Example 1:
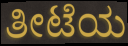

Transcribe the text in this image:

ತೀಟೆಯ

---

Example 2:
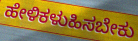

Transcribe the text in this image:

ಹೇಳಿಕಳುಹಿಸಬೇಕು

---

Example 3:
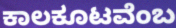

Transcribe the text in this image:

ಕಾಲಕೂಟವೆಂಬ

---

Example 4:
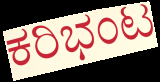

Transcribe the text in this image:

ಕರಿಭಂಟ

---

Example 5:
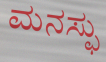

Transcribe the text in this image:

ಮನಸ್ಫು